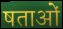
षताओं